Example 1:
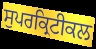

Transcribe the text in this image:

ਸੁਪਰਕ੍ਰਿਟੀਕਲ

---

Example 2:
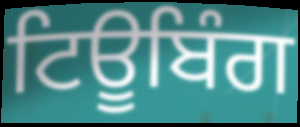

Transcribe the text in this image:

ਟਿਊਬਿੰਗ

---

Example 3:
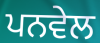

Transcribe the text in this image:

ਪਨਵੇਲ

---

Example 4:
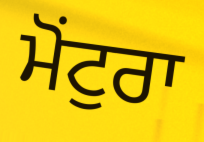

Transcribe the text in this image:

ਮੋਂਟੁਰਾ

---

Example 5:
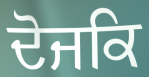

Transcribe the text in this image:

ਦੋਜਕਿ